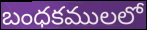
బంధకములలో